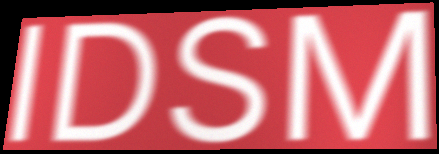
IDSM